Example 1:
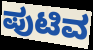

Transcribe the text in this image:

ಪುಟಿವ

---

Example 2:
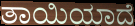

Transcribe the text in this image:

ತಾಯಿಯಾದೆ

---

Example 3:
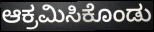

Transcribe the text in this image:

ಆಕ್ರಮಿಸಿಕೊಂಡು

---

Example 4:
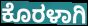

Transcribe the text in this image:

ಕೊರಳಾಗಿ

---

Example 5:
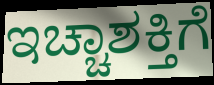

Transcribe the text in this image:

ಇಚ್ಚಾಶಕ್ತಿಗೆ